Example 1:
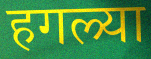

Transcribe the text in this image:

हगल्या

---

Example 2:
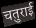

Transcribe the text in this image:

चतुराई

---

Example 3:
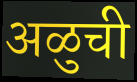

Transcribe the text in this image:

अळुची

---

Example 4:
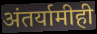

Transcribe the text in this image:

अंतर्यामीही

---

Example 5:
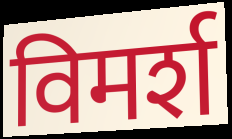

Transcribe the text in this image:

विमर्श